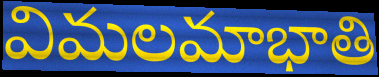
విమలమాభాతి